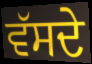
ਵੱਸਦੇ